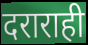
दराराही